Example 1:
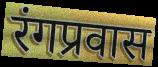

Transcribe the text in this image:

रंगप्रवास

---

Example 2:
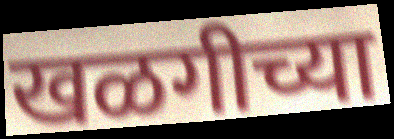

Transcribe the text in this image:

खळगीच्या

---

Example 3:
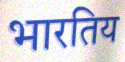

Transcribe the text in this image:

भारतिय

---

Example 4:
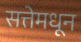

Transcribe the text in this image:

सत्तेमधून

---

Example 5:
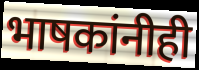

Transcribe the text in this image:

भाषकांनीही